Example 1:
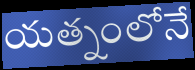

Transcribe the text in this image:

యత్నంలోనే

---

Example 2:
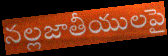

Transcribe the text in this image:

నల్లజాతీయులపై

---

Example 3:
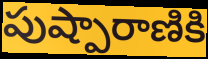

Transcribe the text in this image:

పుష్పారాణికి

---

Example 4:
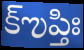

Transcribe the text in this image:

క్ఌప్తిః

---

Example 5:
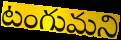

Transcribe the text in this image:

టంగుమని